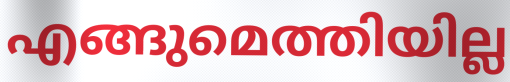
എങ്ങുമെത്തിയില്ല